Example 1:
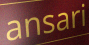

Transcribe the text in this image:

ansari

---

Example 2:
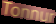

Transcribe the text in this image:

Tonnur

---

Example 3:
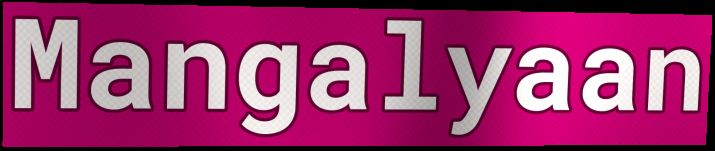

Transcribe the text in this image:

Mangalyaan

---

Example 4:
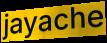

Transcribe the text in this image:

jayache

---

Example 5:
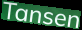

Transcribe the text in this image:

Tansen